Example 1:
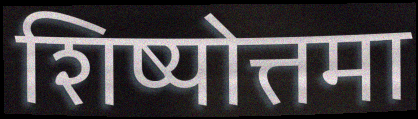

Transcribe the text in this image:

शिष्योत्तमा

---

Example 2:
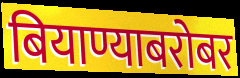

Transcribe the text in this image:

बियाण्याबरोबर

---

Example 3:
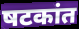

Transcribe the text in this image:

षटकांत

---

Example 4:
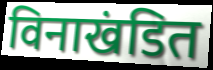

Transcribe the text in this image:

विनाखंडित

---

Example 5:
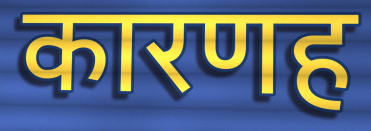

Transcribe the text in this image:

कारणह